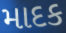
માદક